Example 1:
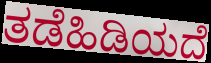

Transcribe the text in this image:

ತಡೆಹಿಡಿಯದೆ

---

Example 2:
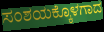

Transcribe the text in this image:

ಸಂಶಯಕ್ಕೊಳಗಾದ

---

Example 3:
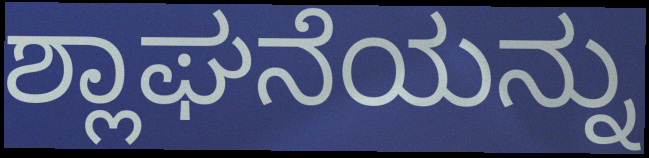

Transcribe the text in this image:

ಶ್ಲಾಘನೆಯನ್ನು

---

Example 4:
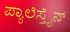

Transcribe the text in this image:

ಪ್ಯಾಲೆಸ್ತೈನ್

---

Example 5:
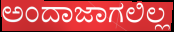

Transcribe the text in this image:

ಅಂದಾಜಾಗಲಿಲ್ಲ